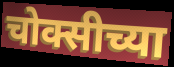
चोक्सीच्या